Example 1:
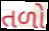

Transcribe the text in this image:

તળો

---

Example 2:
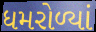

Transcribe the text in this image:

ધમરોળ્યાં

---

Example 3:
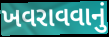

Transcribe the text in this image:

ખવરાવવાનું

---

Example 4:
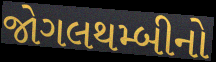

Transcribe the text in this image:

જોગલથમ્બીનો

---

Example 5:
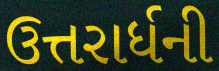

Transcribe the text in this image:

ઉત્તરાર્ધની